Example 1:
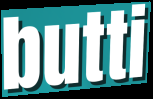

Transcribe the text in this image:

butti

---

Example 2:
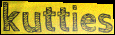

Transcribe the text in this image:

kutties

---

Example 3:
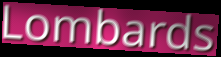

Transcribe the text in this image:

Lombards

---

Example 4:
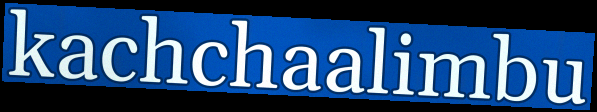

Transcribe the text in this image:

kachchaalimbu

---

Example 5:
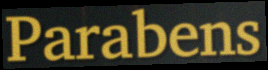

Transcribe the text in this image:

Parabens